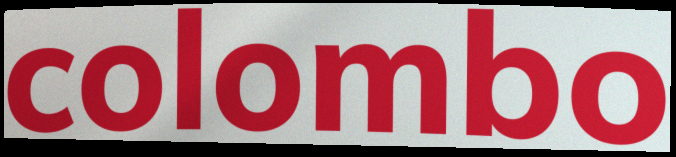
colombo